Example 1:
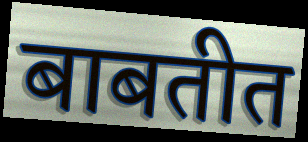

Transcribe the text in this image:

बाबतीत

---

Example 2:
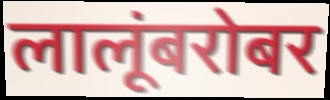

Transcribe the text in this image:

लालूंबरोबर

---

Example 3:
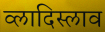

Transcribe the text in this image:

व्लादिस्लाव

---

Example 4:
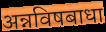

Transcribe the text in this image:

अन्नविषबाधा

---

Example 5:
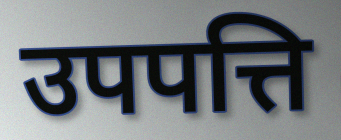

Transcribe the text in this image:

उपपत्ति